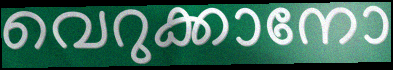
വെറുക്കാനോ